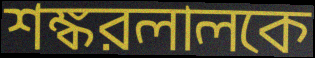
শঙ্করলালকে